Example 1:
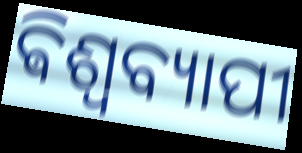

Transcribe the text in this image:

ଵିଶ୍ୱବ୍ୟାପୀ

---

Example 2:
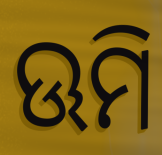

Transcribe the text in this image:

ଊମି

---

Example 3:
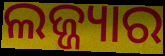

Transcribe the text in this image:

ଲଜ୍ଜ୍ୟାର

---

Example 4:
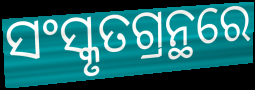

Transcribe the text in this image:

ସଂସ୍କୃତଗ୍ରନ୍ଥରେ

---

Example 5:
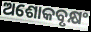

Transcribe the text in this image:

ଅଶୋକବୃକ୍ଷଂ